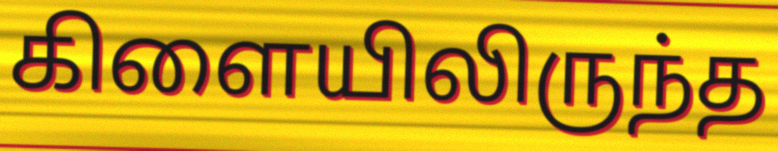
கிளையிலிருந்த